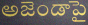
అజెండాపై